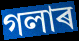
গলাৰ